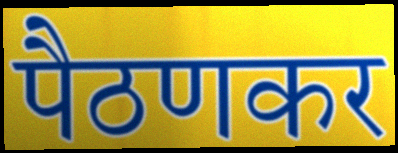
पैठणकर